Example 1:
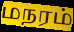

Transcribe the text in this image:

மநரம்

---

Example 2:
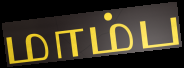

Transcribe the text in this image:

மாம்ப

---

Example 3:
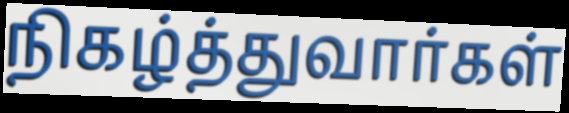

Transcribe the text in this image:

நிகழ்த்துவார்கள்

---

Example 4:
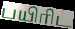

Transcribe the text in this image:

பயிரிட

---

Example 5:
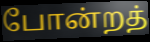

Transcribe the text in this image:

போன்றத்